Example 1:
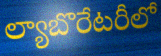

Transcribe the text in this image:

ల్యాబొరేటరీలో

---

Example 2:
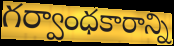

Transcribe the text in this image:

గర్వాంధకారాన్ని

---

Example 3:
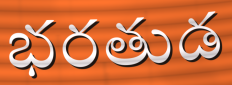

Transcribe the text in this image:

భరతుడ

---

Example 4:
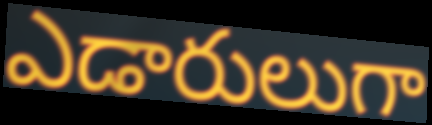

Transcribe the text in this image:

ఎడారులుగా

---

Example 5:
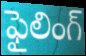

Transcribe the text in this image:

ఫైలింగ్